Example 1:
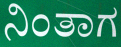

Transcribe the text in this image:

ನಿಂತಾಗ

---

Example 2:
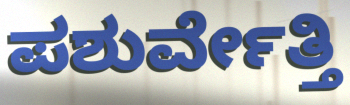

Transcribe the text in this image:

ಪಶುರ್ವೇತ್ತಿ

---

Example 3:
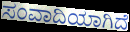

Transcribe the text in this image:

ಸಂವಾದಿಯಾಗಿದೆ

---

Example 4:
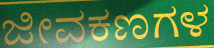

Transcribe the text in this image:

ಜೀವಕಣಗಳ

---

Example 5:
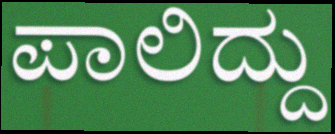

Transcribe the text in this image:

ಪಾಲಿದ್ದು